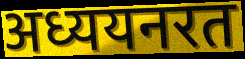
अध्ययनरत